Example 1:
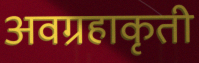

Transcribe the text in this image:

अवग्रहाकृती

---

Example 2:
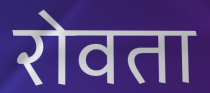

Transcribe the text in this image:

रोवता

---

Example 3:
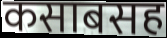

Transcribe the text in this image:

कसाबसह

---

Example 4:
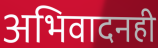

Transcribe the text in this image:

अभिवादनही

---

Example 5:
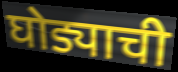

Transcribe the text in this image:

घोड्याची